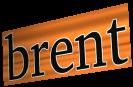
brent